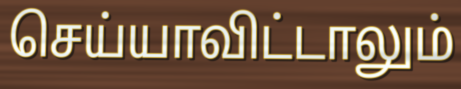
செய்யாவிட்டாலும்